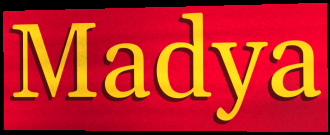
Madya